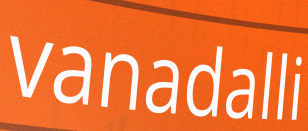
vanadalli